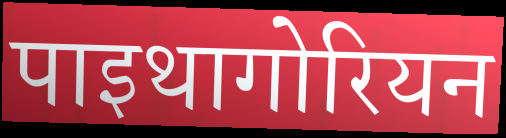
पाइथागोरियन